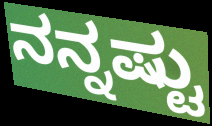
ನನ್ನಷ್ಟು